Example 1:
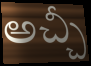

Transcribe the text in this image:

అచ్చీ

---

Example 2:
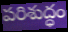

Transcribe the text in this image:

పరిశుద్ధం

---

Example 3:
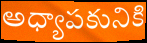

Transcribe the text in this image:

అధ్యాపకునికి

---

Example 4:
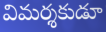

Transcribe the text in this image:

విమర్శకుడూ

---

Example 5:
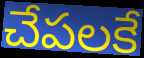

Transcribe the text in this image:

చేపలకే